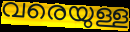
വരെയുള്ള